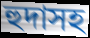
হুদাসহ